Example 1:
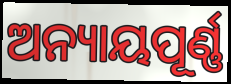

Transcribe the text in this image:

ଅନ୍ୟାୟପୂର୍ଣ୍ଣ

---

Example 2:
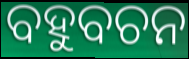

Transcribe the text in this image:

ବହୁବଚନ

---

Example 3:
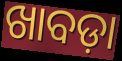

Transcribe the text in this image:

ଖାବଡ଼ା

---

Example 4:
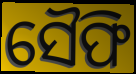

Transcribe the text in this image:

ସୈଫି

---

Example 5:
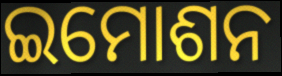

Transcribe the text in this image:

ଇମୋଶନ